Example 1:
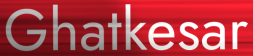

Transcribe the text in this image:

Ghatkesar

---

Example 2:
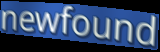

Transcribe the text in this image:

newfound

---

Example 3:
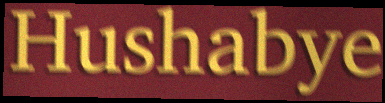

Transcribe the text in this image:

Hushabye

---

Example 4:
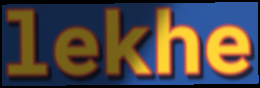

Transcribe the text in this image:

lekhe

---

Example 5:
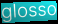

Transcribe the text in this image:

glosso